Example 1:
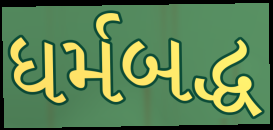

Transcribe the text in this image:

ધર્મબદ્ધ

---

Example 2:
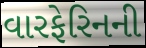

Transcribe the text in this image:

વારફેરિનની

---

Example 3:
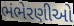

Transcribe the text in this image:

ભંભેરણીઓ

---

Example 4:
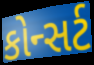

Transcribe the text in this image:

કોન્સર્ટ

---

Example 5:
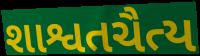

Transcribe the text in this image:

શાશ્વતચૈત્ય